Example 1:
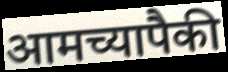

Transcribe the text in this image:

आमच्यापैकी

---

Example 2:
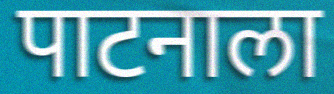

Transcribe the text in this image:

पाटनाला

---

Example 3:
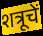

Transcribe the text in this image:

शत्रूचें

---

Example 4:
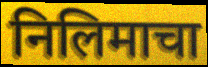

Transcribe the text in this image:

निलिमाचा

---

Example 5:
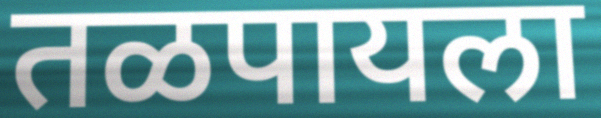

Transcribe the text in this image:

तळपायला